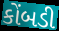
કોંબડી